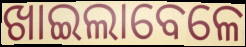
ଖାଇଲାବେଳେ